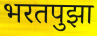
भरतपुझा